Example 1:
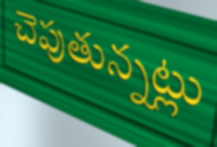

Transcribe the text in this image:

చెపుతున్నట్లు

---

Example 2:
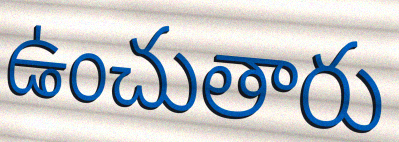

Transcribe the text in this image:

ఉంచుతారు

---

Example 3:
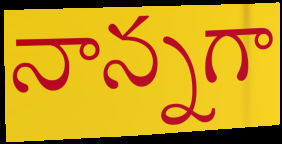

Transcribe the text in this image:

నాన్నగా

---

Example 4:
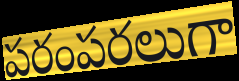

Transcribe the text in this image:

పరంపరలుగా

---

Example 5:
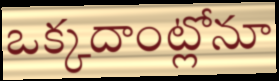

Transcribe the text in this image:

ఒక్కదాంట్లోనూ